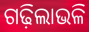
ଗଢ଼ିଲାଭଳି